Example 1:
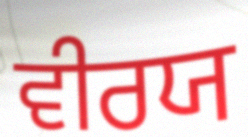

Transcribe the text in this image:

ਵੀਰਯ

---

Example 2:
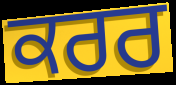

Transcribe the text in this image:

ਕਰਰ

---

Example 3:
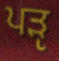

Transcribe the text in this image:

ਪੜੵ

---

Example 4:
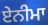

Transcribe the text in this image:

ਏਨੀਮਾ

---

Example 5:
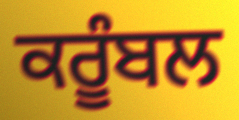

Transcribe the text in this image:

ਕਰੂੰਬਲ